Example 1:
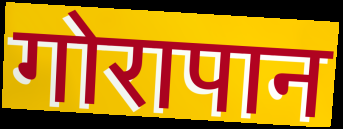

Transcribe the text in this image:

गोरापान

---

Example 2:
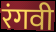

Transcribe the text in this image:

रंगवी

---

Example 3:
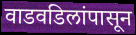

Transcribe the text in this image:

वाडवडिलांपासून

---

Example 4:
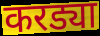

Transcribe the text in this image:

करड्या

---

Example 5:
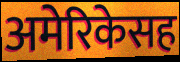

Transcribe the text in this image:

अमेरिकेसह